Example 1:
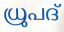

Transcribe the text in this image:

ധ്രുപദ്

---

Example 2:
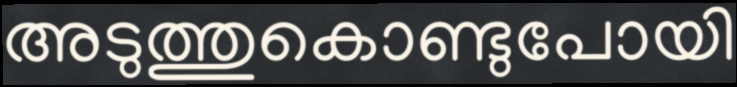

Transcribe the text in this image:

അടുത്തുകൊണ്ടുപോയി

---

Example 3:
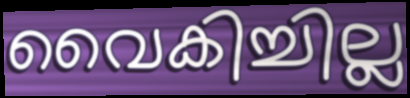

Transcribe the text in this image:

വൈകിച്ചില്ല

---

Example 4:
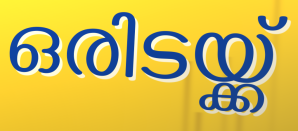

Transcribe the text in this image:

ഒരിടയ്ക്ക്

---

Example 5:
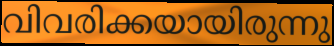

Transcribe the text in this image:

വിവരിക്കയായിരുന്നു